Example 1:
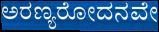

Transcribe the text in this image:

ಅರಣ್ಯರೋದನವೇ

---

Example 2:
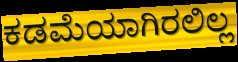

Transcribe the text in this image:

ಕಡಮೆಯಾಗಿರಲಿಲ್ಲ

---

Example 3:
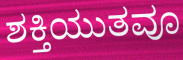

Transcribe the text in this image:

ಶಕ್ತಿಯುತವೂ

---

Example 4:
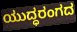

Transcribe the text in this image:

ಯುದ್ಧರಂಗದ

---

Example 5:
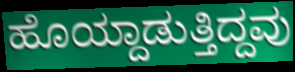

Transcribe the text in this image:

ಹೊಯ್ದಾಡುತ್ತಿದ್ದವು